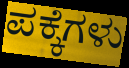
ಪಕ್ಕೆಗಳು